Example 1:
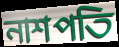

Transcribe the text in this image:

নাশপতি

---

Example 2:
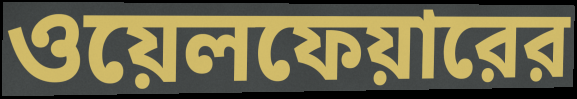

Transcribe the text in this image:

ওয়েলফেয়ারের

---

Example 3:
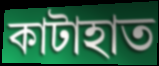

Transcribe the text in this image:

কাটাহাত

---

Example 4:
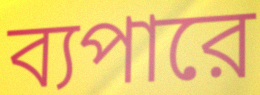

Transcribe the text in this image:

ব্যপারে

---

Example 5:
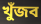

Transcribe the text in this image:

খুঁজব